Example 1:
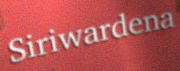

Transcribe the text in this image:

Siriwardena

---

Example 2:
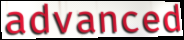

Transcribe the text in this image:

advanced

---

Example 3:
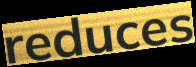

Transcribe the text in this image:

reduces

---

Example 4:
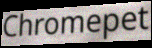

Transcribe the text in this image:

Chromepet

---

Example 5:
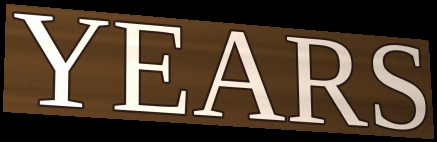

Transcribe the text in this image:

YEARS